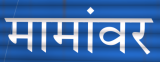
मामांवर